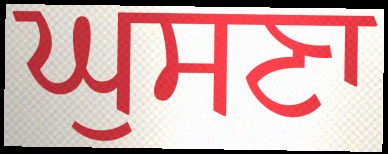
ਘੁਸਣਾ